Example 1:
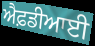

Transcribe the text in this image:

ਐਫ਼ਡੀਆਈ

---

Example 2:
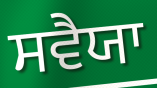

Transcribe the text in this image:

ਸਵੈਯਾ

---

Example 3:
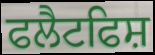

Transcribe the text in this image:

ਫਲੈਟਫਿਸ਼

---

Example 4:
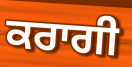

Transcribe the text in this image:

ਕਰਾਗੀ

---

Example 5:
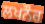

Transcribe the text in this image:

ਲਖਨੌਰ